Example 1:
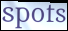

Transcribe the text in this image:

spots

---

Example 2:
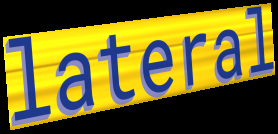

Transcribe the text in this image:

lateral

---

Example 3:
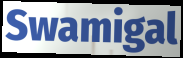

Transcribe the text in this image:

Swamigal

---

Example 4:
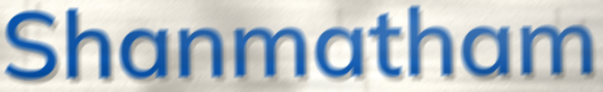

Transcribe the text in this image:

Shanmatham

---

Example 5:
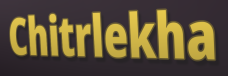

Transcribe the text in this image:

Chitrlekha